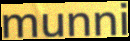
munni